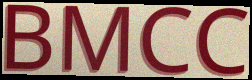
BMCC